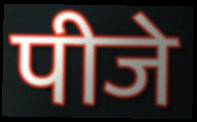
पीजे